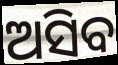
ଅସିବ